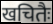
खचितैः